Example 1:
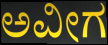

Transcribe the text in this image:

ಅವೀಗ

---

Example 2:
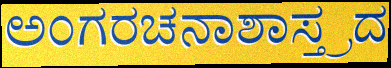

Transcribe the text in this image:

ಅಂಗರಚನಾಶಾಸ್ತ್ರದ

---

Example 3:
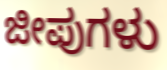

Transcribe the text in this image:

ಜೀಪುಗಳು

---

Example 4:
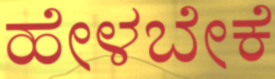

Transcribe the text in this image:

ಹೇಳಬೇಕೆ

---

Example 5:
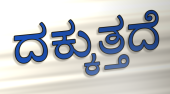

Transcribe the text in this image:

ದಕ್ಕುತ್ತದೆ